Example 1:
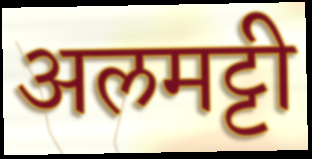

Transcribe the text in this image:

अलमट्टी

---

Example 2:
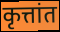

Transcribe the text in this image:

कृत्तांत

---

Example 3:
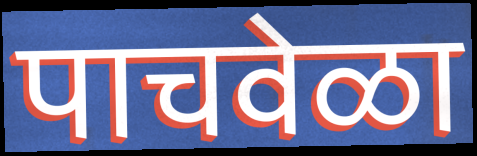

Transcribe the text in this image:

पाचवेळा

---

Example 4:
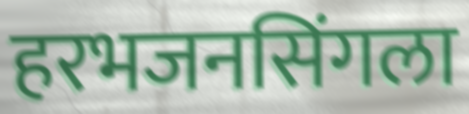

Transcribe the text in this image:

हरभजनसिंगला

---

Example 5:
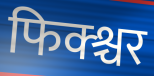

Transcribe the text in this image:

फिक्श्चर